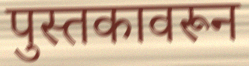
पुस्तकावरून